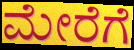
ಮೇರೆಗೆ